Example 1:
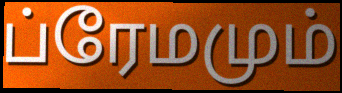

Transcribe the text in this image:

ப்ரேமமும்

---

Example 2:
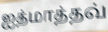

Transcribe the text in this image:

ஐத்மாத்தவ்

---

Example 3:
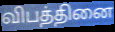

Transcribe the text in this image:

விபத்தினை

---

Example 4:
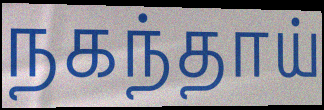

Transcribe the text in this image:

நகந்தாய்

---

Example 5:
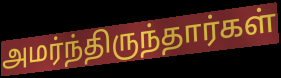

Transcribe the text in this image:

அமர்ந்திருந்தார்கள்